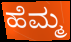
ಹೆಮ್ಮ